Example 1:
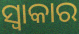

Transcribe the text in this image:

ସ୍ୱାକାର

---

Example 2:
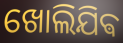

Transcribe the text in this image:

ଖୋଲିଯିଵ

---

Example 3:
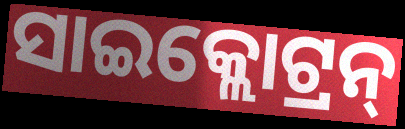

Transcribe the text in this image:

ସାଇକ୍ଲୋଟ୍ରନ୍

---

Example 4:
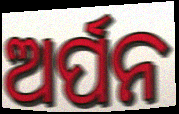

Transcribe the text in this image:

ଅର୍ପନ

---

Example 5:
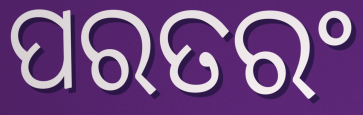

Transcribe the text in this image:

ପରତରଂ